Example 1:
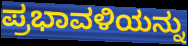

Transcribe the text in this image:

ಪ್ರಭಾವಳಿಯನ್ನು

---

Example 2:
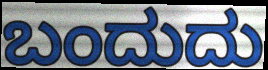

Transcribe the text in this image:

ಬಂದುದು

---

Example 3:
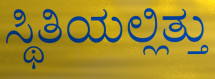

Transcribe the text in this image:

ಸ್ಥಿತಿಯಲ್ಲಿತ್ತು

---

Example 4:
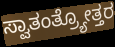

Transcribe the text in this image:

ಸ್ವಾತಂತ್ರ್ಯೋತ್ತರ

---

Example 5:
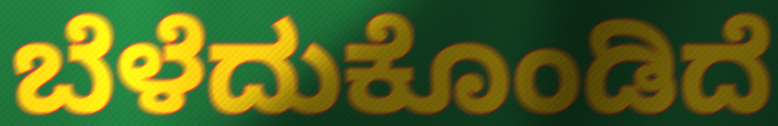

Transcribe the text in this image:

ಬೆಳೆದುಕೊಂಡಿದೆ